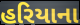
હરિયાના